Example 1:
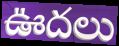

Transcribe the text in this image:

ఊదలు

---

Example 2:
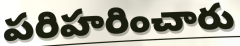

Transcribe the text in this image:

పరిహరించారు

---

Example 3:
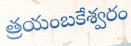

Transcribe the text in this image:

త్రయంబకేశ్వరం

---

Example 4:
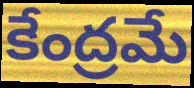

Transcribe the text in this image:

కేంద్రమే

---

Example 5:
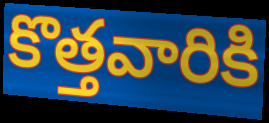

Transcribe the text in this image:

కొత్తవారికి